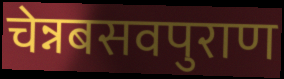
चेन्नबसवपुराण